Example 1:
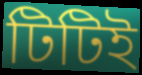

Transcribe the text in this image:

টিটিই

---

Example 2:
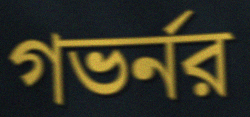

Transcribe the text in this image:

গভর্নর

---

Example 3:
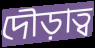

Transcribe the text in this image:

দৌড়াত্ব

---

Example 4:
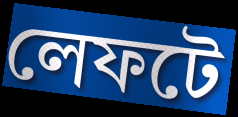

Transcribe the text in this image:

লেফটে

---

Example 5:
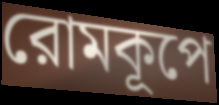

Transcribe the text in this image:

রোমকূপে